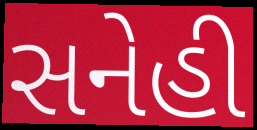
સનેહી